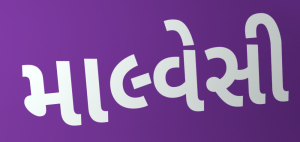
માલ્વેસી